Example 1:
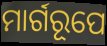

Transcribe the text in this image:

ମାର୍ଗରୂପେ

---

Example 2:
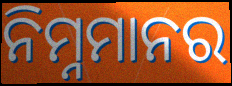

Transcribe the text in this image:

ନିମ୍ନମାନର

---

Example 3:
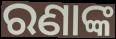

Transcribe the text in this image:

ରଣାଙ୍କ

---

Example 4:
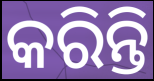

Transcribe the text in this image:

କରିନ୍ତି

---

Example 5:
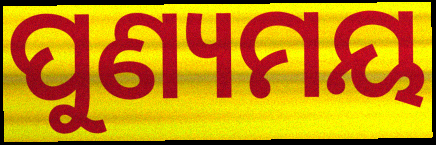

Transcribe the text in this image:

ପୁଣ୍ୟମୟ